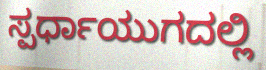
ಸ್ಪರ್ಧಾಯುಗದಲ್ಲಿ